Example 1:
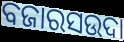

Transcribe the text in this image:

ବଜାରସଉଦା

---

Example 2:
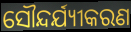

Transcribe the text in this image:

ସୌନ୍ଦର୍ଯ୍ୟୀକରଣ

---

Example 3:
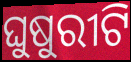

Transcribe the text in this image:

ଘୁଷୁରୀଟି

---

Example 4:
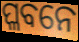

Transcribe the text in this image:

ପ୍ଳବନେ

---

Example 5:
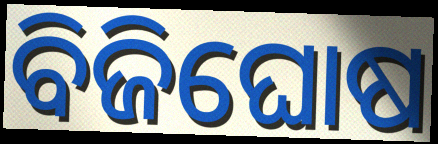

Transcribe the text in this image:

ବିଜିଘୋଷ